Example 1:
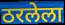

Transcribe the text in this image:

ठरलेला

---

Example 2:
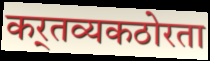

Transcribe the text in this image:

कर्तव्यकठोरता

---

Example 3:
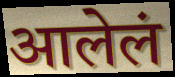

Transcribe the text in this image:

आलेलं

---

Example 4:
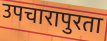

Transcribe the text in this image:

उपचारापुरता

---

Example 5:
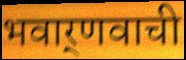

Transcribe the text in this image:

भवार्णवाची